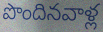
పొందినవాళ్ల